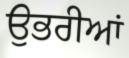
ਉਭਰੀਆਂ